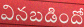
వినబడిందో